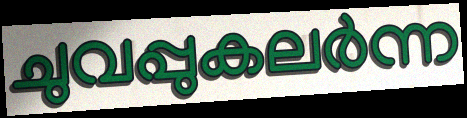
ചുവപ്പുകലർന്ന